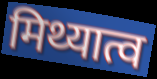
मिथ्यात्व